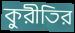
কুরীতির